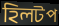
হিলটপ